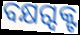
ବକ୍ଷଗ୍ଦକ୍ଟ